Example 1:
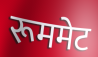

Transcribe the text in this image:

रूममेट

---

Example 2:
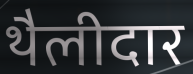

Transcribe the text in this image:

थैलीदार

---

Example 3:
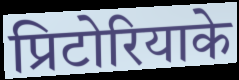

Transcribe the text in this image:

प्रिटोरियाके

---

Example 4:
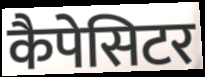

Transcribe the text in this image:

कैपेसिटर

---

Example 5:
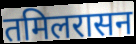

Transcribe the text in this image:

तमिलरासन